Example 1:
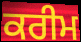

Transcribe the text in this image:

ਕਰੀਮ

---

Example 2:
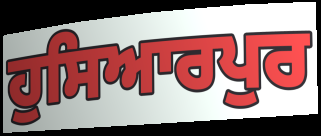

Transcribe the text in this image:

ਹੁਸਿਆਰਪੁਰ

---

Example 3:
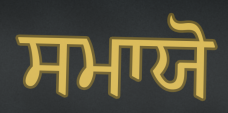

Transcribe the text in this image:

ਸਮਾਯੋ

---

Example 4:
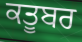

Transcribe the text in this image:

ਕਤੂਬਰ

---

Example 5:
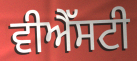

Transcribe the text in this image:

ਵੀਐੱਸਟੀ